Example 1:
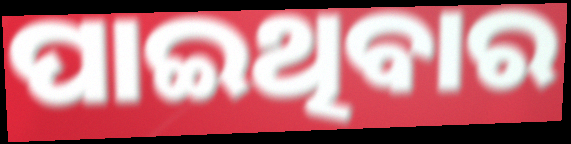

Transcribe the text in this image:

ପାଇଥିବାର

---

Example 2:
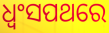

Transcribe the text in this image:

ଧ୍ବଂସପଥରେ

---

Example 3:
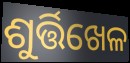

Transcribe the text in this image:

ଶୁର୍ତ୍ତିଖେଳ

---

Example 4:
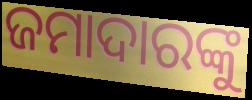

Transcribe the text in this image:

ଜମାଦାରଙ୍କୁ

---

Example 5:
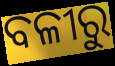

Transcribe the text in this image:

ବଳୀରୁ